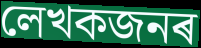
লেখকজনৰ